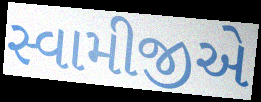
સ્વામીજીએ